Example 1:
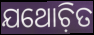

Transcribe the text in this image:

ଯଥୋଚ଼ିତ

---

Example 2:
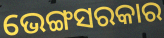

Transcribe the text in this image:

ଭେଙ୍ଗସରକାର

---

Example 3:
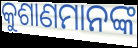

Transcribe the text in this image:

କୁଶାଣମାନଙ୍କ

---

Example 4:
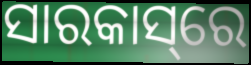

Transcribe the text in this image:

ସାରକାସ୍‌ରେ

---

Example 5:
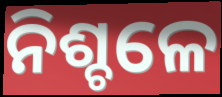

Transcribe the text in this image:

ନିଶ୍ଚଳେ